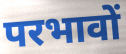
परभावों